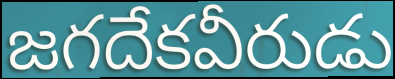
జగదేకవీరుడు